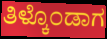
ತಿಳ್ಕೊಂಡಾಗ